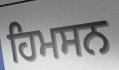
ਹਿਮਸਨ